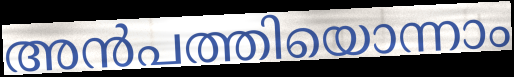
അൻപത്തിയൊന്നാം